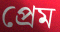
প্ৰেম